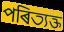
পৰিত্যক্ত